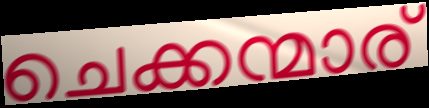
ചെക്കന്മാര്